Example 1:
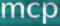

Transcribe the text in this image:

mcp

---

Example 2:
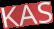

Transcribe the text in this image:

KAS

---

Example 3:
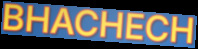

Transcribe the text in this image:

BHACHECH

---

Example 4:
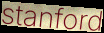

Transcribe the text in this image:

stanford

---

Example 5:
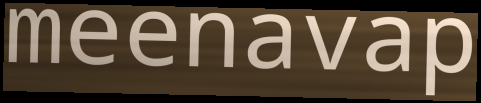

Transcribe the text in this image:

meenavap